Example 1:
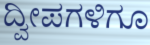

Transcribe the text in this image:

ದ್ವೀಪಗಳಿಗೂ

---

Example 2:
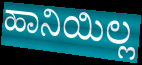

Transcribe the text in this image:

ಹಾನಿಯಿಲ್ಲ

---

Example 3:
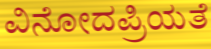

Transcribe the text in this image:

ವಿನೋದಪ್ರಿಯತೆ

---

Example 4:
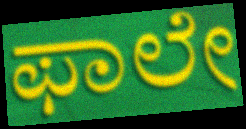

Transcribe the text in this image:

ಫಾಲೇ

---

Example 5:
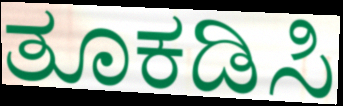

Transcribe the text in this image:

ತೂಕಡಿಸಿ